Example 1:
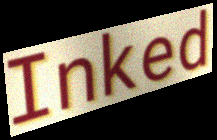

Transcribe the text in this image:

Inked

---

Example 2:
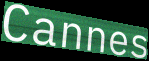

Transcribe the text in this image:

Cannes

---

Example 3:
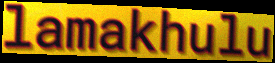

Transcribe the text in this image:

lamakhulu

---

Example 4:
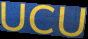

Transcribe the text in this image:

UCU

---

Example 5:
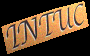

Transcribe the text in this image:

INTUC